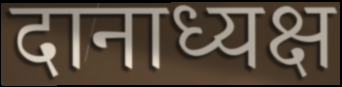
दानाध्यक्ष